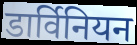
डार्विनियन